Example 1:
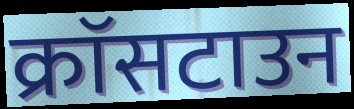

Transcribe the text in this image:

क्रॉसटाउन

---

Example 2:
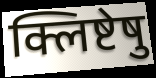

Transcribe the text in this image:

क्लिष्टेषु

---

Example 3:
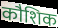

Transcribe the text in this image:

कौशिक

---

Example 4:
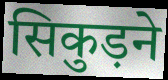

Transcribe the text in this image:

सिकुड़ने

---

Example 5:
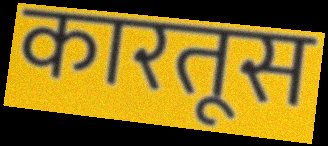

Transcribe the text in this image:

कारतूस